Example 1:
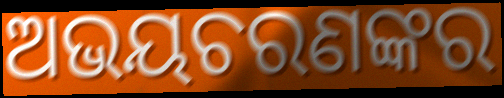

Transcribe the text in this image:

ଅଭୟଚରଣଙ୍କର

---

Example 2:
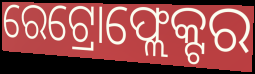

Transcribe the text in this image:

ରେଟ୍ରୋଫ୍ଲେକ୍ଟର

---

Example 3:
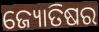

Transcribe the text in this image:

ଜ୍ୟୋତିଷର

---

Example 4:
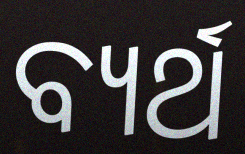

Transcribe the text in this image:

ବ୍ଯର୍ଥ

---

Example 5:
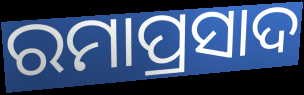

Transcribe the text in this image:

ରମାପ୍ରସାଦ